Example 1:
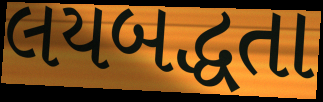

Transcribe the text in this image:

લયબદ્ધતા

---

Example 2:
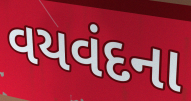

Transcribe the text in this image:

વયવંદના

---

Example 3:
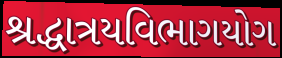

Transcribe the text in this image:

શ્રદ્ધાત્રયવિભાગયોગ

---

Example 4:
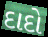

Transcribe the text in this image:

દાદો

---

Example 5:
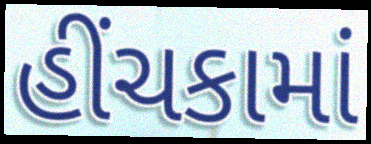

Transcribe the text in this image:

હીંચકામાં